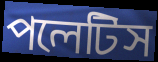
পলেটিস